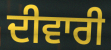
ਦੀਵਾਰੀ